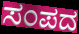
ಸಂಪದ